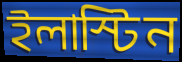
ইলাস্টিন